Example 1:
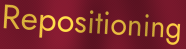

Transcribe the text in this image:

Repositioning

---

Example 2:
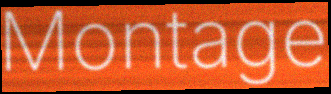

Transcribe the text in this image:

Montage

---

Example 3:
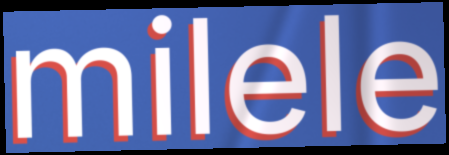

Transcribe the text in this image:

milele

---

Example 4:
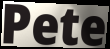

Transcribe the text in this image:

Pete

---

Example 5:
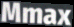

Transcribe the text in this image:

Mmax